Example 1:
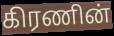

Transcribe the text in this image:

கிரணின்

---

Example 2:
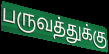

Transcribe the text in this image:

பருவத்துக்கு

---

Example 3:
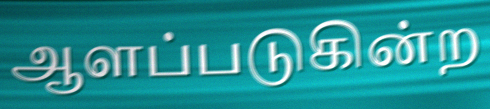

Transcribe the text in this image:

ஆளப்படுகின்ற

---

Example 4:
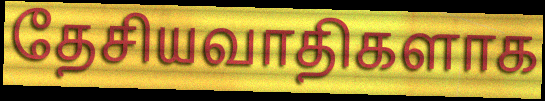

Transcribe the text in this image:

தேசியவாதிகளாக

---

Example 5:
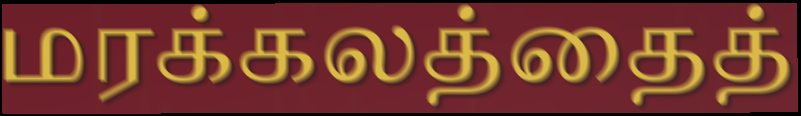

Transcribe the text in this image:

மரக்கலத்தைத்